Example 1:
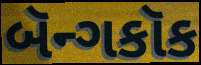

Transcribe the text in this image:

બૅન્ગકૉક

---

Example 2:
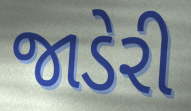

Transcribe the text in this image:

જાડેરી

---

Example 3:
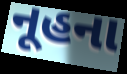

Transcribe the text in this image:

નૂહના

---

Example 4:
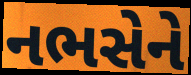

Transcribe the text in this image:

નભસેને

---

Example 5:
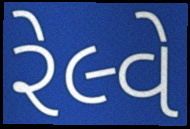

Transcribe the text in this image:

રેલ્વે